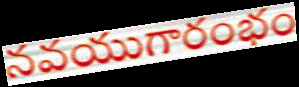
నవయుగారంభం